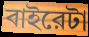
বাইরেটা